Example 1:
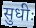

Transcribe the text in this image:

सुधीः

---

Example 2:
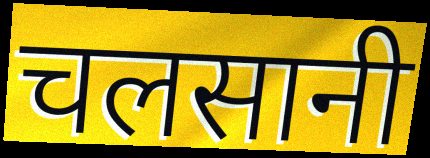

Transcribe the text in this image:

चलसानी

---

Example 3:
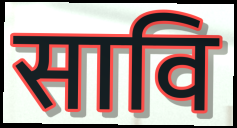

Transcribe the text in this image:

सावि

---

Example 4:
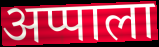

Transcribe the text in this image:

अप्पाला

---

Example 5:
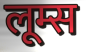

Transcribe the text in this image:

लूम्स